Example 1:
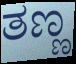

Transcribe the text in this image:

ತಣ್ಣ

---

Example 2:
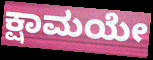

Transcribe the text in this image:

ಕ್ಷಾಮಯೇ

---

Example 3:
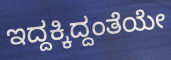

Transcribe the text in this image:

ಇದ್ದಕ್ಕಿದ್ದಂತೆಯೇ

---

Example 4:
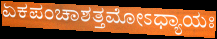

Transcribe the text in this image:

ಏಕಪಂಚಾಶತ್ತಮೋಽಧ್ಯಾಯಃ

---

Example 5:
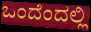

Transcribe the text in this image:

ಒಂದೆಂದಲ್ಲಿ